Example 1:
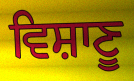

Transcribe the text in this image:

ਵਿਸ਼ਾਣੂ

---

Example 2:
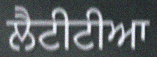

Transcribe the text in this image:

ਲੈਟੀਟੀਆ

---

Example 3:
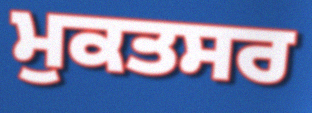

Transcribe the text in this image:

ਮੁਕਤਸਰ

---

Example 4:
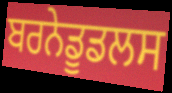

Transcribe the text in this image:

ਬਰਨੇਡੂਡਲਸ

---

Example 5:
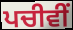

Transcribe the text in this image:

ਪਚੀਵੀਂ